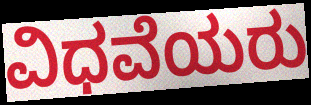
ವಿಧವೆಯರು